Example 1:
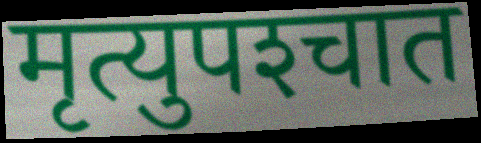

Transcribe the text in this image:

मृत्युपश्‍चात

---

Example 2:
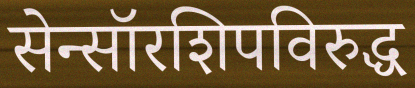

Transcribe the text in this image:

सेन्सॉरशिपविरुद्ध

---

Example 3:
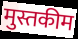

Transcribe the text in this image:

मुस्तकीम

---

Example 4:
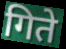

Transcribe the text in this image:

गिते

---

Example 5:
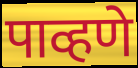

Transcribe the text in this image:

पाव्हणे